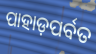
ପାହାଡ଼ପର୍ବତ